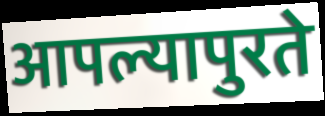
आपल्यापुरते